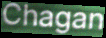
Chagan